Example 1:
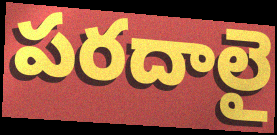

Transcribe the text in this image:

పరదాలై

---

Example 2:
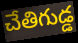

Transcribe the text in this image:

చేతిగుడ్డ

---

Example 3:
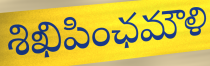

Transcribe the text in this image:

శిఖిపింఛమౌళి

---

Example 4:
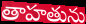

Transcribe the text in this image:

తాహతును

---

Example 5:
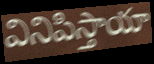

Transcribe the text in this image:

వినిపిస్తాయా